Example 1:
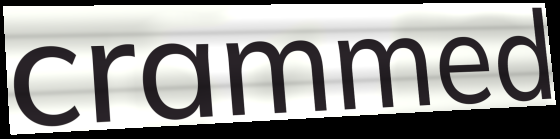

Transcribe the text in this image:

crammed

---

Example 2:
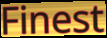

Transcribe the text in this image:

Finest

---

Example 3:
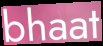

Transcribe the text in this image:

bhaat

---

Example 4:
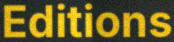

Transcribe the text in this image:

Editions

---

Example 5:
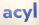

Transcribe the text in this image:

acyl